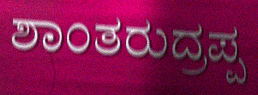
ಶಾಂತರುದ್ರಪ್ಪ